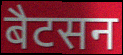
बैटसन